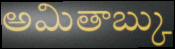
అమితాబ్కు